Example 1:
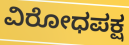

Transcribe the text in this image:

ವಿರೋಧಪಕ್ಷ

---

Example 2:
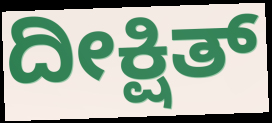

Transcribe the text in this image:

ದೀಕ್ಷಿತ್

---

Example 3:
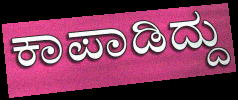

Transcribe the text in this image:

ಕಾಪಾಡಿದ್ದು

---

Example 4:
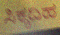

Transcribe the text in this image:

ಸಿಕ್ಕದಿಹ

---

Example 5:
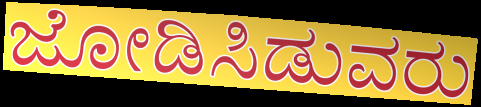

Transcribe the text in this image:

ಜೋಡಿಸಿಡುವರು